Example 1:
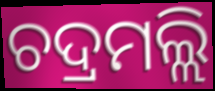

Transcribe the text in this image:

ଚଦ୍ରମଲ୍ଲି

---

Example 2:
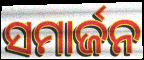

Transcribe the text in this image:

ସମାର୍ଜନ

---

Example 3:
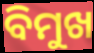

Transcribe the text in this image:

ବିମୁଖ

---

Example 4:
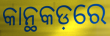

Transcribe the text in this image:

କାନ୍ଥକଡ଼ରେ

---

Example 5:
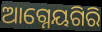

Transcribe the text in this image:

ଆଗ୍ନେୟଗିରି